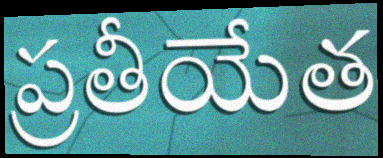
ప్రతీయేత